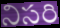
నిసరి